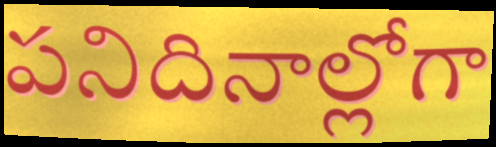
పనిదినాల్లోగా